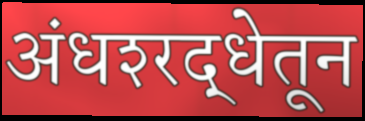
अंधश्रद्धेतून